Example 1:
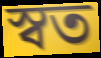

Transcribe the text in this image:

স্বত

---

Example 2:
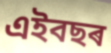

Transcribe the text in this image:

এইবছৰ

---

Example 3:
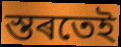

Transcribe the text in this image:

স্তৰতেই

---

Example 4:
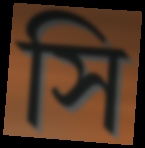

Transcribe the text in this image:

সি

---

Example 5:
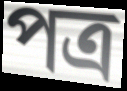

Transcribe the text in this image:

পত্ৰ